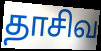
தாசிவ